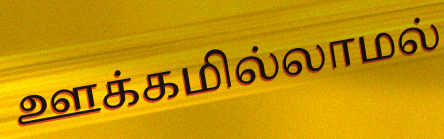
ஊக்கமில்லாமல்